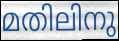
മതിലിനു